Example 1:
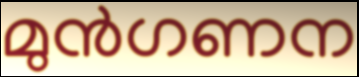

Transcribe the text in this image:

മുൻഗണന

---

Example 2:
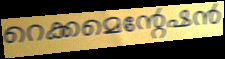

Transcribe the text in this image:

റെക്കമെന്റേഷൻ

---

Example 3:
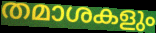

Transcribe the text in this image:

തമാശകളും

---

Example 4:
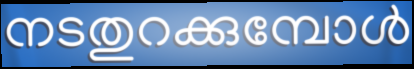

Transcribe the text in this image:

നടതുറക്കുമ്പോൾ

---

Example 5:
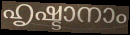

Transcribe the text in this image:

ഹൃഷ്ടാനാം